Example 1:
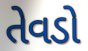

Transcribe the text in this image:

તેવડો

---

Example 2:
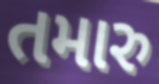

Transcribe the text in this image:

તમારુ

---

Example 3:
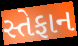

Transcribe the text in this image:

સ્તેફાન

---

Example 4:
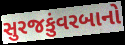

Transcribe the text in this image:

સુરજકુંવરબાનો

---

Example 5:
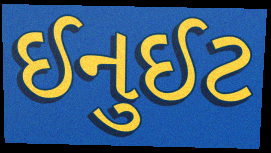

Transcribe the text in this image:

ઈનુઈટ